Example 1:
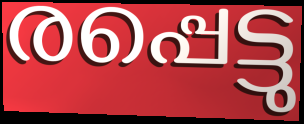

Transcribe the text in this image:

രപ്പെട്ടു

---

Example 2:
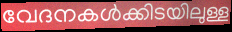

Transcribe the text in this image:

വേദനകൾക്കിടയിലുള്ള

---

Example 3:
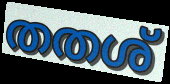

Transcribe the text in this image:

തതശ്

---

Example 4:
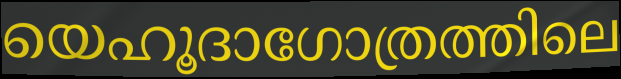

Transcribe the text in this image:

യെഹൂദാഗോത്രത്തിലെ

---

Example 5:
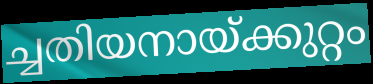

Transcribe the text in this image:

ച്ചതിയനായ്ക്കുറ്റം